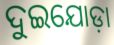
ଦୁଇଯୋଡ଼ା